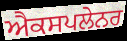
ਐਕਸਪਲੇਨਰ